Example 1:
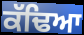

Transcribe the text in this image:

ਕੱਢਿਆ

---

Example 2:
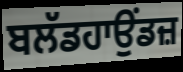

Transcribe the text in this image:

ਬਲੱਡਹਾਉਂਡਜ਼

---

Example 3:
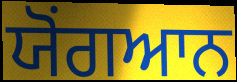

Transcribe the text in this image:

ਯੋਂਗਆਨ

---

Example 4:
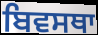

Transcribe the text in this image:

ਬਿਵਸਥਾ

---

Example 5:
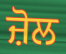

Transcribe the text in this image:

ਜ਼ੋਲ